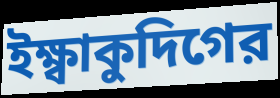
ইক্ষ্বাকুদিগের